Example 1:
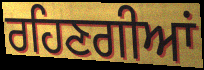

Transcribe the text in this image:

ਰਹਿਣਗੀਆਂ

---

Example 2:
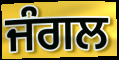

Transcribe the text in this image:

ਜੰਗਲ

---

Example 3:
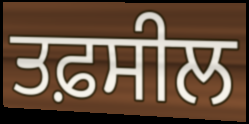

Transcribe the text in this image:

ਤਫ਼ਸੀਲ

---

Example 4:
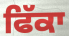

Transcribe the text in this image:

ਫਿੱਕਾ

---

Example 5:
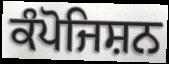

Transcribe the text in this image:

ਕੰਪੋਜਿਸ਼ਨ